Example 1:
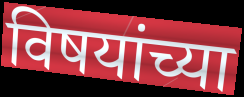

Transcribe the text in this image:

विषयांच्या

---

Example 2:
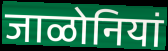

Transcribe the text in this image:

जाळोनियां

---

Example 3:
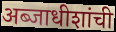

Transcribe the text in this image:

अब्जाधीशांची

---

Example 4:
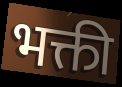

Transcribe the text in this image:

भक्ती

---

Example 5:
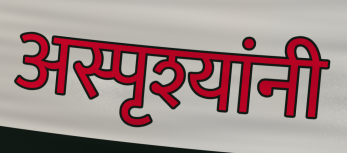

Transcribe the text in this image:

अस्पृश्यांनी